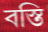
বস্তি